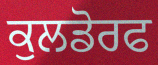
ਕੁਲਡੋਰਫ